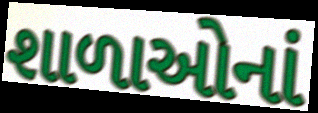
શાળાઓનાં